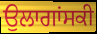
ਉਲਾਗਾਂਸਕੀ